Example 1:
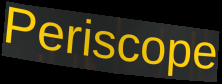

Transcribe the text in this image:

Periscope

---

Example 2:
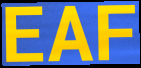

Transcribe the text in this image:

EAF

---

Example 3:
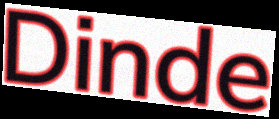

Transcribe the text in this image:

Dinde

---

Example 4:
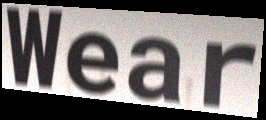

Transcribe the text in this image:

Wear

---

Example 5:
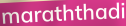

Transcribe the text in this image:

maraththadi